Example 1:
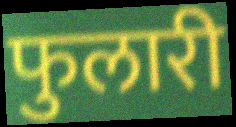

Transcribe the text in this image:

फुलारी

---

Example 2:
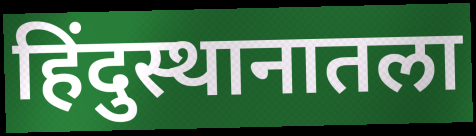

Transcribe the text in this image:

हिंदुस्थानातला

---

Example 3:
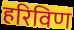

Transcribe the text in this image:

हरिविण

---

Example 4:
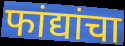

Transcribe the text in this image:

फांद्यांचा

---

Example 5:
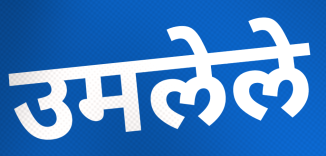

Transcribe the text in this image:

उमलेले